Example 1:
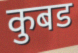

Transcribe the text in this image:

कुबड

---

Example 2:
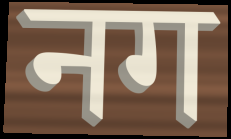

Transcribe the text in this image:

नग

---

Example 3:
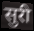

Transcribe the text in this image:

सुरी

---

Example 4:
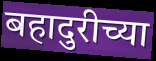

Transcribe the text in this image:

बहादुरीच्या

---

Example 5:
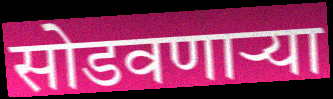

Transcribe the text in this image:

सोडवणाऱ्या